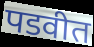
पडवीत